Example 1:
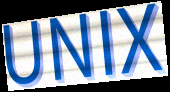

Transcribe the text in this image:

UNIX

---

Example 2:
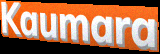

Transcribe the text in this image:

Kaumara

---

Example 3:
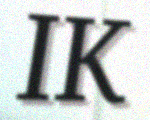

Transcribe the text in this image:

IK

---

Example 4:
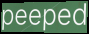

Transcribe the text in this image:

peeped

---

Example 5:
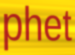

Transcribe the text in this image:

phet